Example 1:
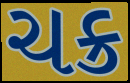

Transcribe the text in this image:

ચક્ર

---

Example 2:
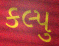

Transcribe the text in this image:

કલ્પુ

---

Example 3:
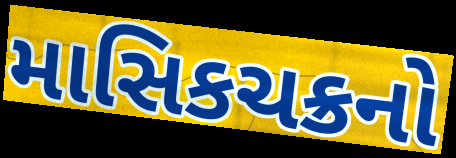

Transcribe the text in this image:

માસિકચક્રનો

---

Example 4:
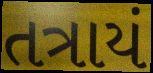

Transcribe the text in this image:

તત્રાયં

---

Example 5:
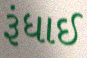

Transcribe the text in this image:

રૂંધાઈ